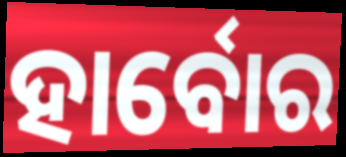
ହାର୍ବୋର